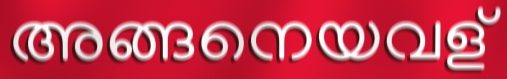
അങ്ങനെയവള്